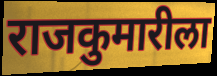
राजकुमारीला